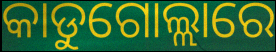
କାଡୁଗୋଲ୍ଲାରେ